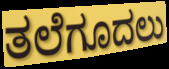
ತಲೆಗೂದಲು